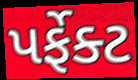
પર્ફેક્ટ